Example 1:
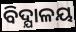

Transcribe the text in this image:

ବିଦ୍ଯାଳୟ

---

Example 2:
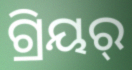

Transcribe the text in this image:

ଗ୍ରିୟର୍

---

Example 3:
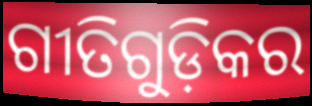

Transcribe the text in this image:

ଗୀତିଗୁଡ଼ିକର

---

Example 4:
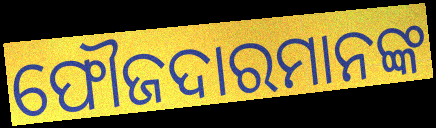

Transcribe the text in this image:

ଫୌଜଦାରମାନଙ୍କ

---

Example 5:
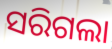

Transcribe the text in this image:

ସରିଗଲା